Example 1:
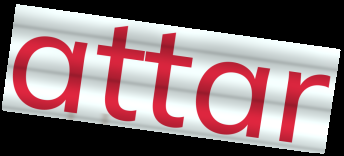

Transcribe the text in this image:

attar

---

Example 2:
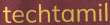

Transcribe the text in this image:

techtamil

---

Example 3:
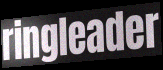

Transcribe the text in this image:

ringleader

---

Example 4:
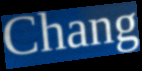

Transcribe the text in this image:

Chang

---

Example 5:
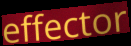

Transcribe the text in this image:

effector